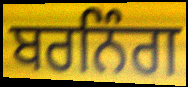
ਬਰਨਿੰਗ